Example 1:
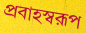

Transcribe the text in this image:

প্রবাহস্বরূপ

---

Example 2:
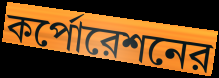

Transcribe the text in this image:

কর্পোরেশনের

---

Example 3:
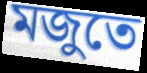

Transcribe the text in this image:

মজুতে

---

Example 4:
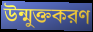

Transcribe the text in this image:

উন্মুক্তকরণ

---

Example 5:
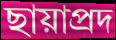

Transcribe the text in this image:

ছায়াপ্রদ